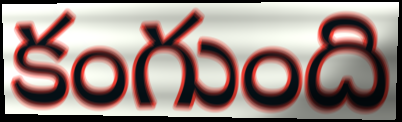
కంగుంది